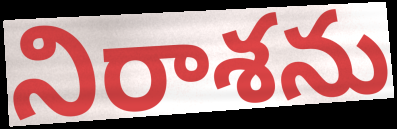
నిరాశను